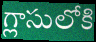
గ్లాసులోకి